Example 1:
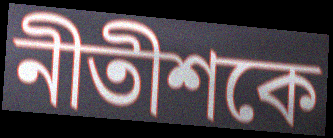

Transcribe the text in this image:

নীতীশকে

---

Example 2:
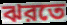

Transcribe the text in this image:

ঝরতে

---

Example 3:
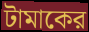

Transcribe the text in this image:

টামাকের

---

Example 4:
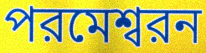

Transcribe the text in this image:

পরমেশ্বরন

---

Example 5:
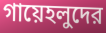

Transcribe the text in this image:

গায়েহলুদের